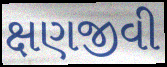
ક્ષણજીવી